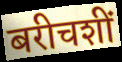
बरीचशीं